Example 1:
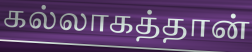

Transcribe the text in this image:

கல்லாகத்தான்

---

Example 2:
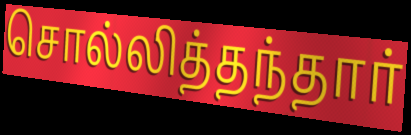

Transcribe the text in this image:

சொல்லித்தந்தார்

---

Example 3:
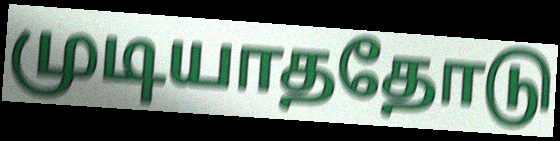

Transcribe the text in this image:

முடியாததோடு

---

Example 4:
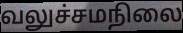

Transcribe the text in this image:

வலுச்சமநிலை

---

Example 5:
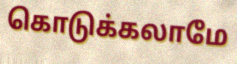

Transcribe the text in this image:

கொடுக்கலாமே